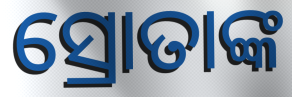
ସ୍ରୋତାଙ୍କ